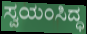
ಸ್ವಯಂಸಿದ್ಧ